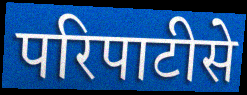
परिपाटीसे